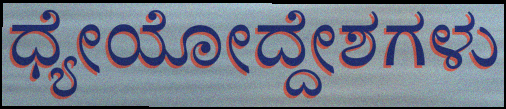
ಧ್ಯೇಯೋದ್ದೇಶಗಳು